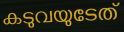
കടുവയുടേത്